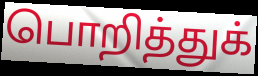
பொறித்துக்